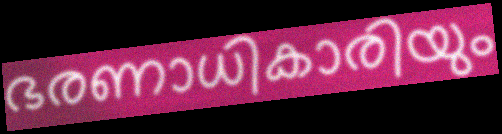
ഭരണാധികാരിയും